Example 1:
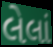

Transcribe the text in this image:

લેલાં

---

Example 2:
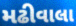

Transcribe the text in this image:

મઢીવાલા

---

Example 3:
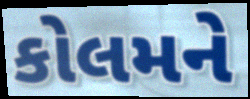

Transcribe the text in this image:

કોલમને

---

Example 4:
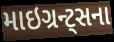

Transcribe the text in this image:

માઇગ્રન્ટ્સના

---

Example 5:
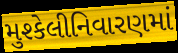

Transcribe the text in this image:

મુશ્કેલીનિવારણમાં